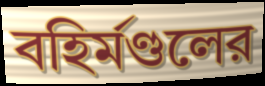
বহির্মণ্ডলের